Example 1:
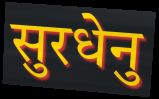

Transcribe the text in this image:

सुरधेनु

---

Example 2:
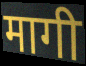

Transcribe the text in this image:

मागी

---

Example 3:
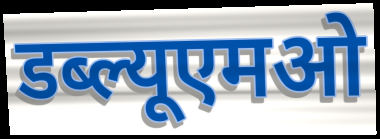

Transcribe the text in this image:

डब्ल्यूएमओ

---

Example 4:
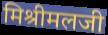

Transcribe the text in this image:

मिश्रीमलजी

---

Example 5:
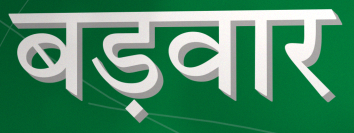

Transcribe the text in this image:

बड़वार